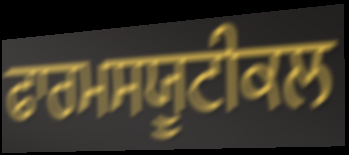
ਫਾਰਮਸਯੂਟੀਕਲ